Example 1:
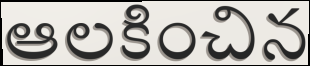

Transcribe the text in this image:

ఆలకించిన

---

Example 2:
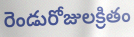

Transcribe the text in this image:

రెండురోజులక్రితం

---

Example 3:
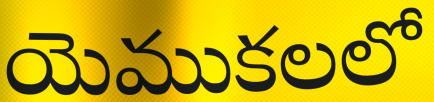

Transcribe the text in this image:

యెముకలలో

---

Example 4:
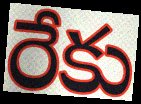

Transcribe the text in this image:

రేకు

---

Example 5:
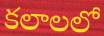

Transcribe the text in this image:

కలాలలో